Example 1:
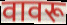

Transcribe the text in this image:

वावरू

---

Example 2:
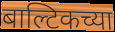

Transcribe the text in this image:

बाल्टिकच्या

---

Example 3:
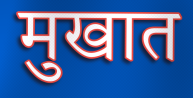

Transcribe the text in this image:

मुखात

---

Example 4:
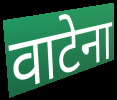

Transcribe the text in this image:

वाटेना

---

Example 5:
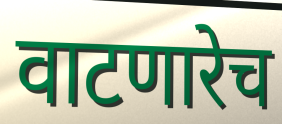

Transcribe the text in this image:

वाटणारेच